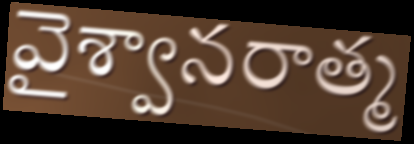
వైశ్వానరాత్మ